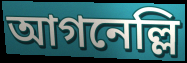
আগনেল্লি